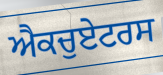
ਐਕਚੁਏਟਰਸ